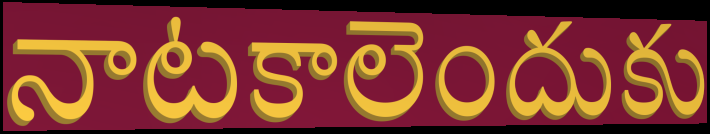
నాటకాలెందుకు